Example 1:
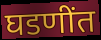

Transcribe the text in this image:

घडणींत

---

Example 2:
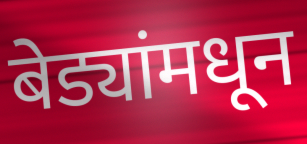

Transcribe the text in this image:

बेड्यांमधून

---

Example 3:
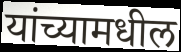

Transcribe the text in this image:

यांच्यामधील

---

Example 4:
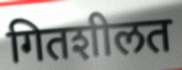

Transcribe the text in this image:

गितशीलत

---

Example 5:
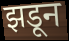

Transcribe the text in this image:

झडून